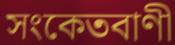
সংকেতবাণী